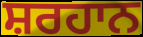
ਸ਼ਰਹਾਨ